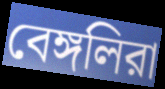
বেঙ্গলিরা